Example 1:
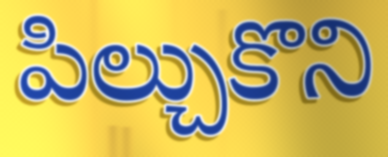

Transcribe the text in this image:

పిల్చుకొని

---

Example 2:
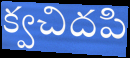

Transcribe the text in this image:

క్వచిదపి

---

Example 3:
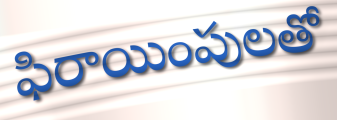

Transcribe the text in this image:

ఫిరాయింపులతో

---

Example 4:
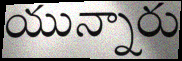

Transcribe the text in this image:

యున్నారు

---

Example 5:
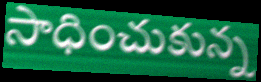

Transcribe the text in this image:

సాధించుకున్న